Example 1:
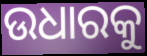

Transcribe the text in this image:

ଉଧାରକୁ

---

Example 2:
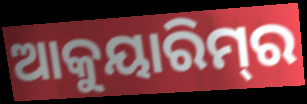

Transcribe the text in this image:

ଆକୁୟାରିମ୍‌ର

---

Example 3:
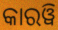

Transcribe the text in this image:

କାରୱି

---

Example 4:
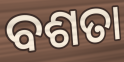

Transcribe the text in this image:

ବଶତା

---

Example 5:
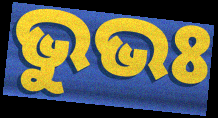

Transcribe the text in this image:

ଭୁଭଃ